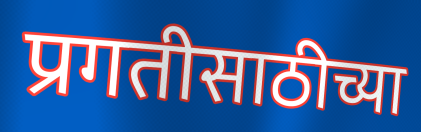
प्रगतीसाठीच्या